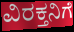
ವಿರಕ್ತನಿಗೆ